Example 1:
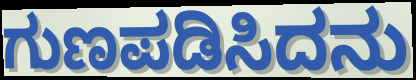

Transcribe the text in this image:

ಗುಣಪಡಿಸಿದನು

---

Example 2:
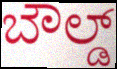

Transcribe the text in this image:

ಬೌಲ್ಡ್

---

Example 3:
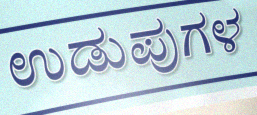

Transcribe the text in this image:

ಉಡುಪುಗಳ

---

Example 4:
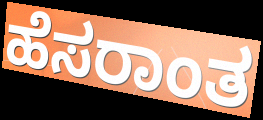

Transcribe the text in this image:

ಹೆಸರಾಂತ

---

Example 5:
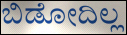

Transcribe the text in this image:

ಬಿಡೋದಿಲ್ಲ